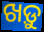
ଖଡ଼ୁ